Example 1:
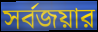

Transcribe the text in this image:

সর্বজয়ার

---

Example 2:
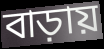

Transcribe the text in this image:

বাড়ায়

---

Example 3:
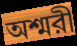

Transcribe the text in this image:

অশ্মরী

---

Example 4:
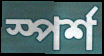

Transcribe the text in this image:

স্পর্শ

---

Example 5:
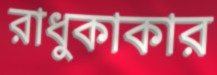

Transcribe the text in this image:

রাধুকাকার